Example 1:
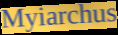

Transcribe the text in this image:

Myiarchus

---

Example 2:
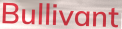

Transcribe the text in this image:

Bullivant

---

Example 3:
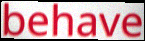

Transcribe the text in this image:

behave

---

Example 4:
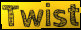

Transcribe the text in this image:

Twist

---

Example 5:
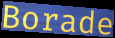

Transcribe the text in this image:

Borade